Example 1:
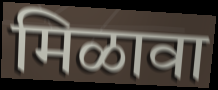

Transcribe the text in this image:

मिळावा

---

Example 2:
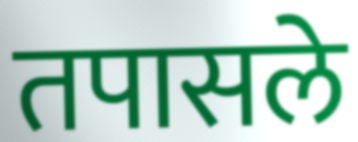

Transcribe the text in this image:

तपासले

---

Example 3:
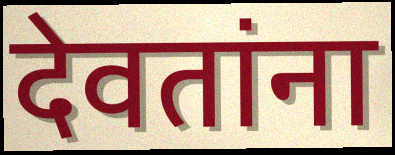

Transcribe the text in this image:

देवतांना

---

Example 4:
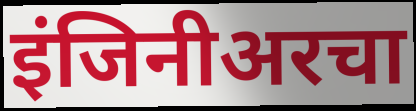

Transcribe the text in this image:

इंजिनीअरचा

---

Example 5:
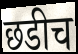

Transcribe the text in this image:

छडीच